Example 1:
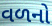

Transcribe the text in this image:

વળનો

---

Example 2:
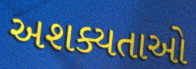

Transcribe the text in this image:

અશક્યતાઓ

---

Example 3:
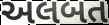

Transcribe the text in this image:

અલબત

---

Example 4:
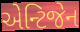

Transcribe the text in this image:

એન્ટિજેન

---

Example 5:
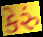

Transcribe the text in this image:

કેરું